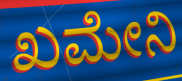
ಖಮೇನಿ